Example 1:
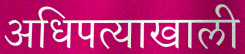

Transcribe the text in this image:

अधिपत्याखाली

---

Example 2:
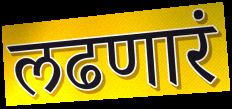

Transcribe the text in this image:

लढणारं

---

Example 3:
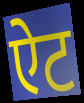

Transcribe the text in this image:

ऐट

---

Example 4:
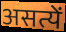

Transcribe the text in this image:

असत्यें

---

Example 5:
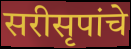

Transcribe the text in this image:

सरीसृपांचे